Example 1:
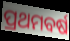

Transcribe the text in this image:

ପ୍ରଥମବର୍ଷ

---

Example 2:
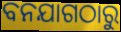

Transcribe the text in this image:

ବନଯାଗଠାରୁ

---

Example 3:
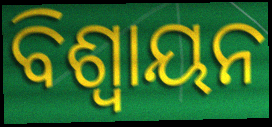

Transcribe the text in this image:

ବିଶ୍ଵାୟନ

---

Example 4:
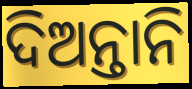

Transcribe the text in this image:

ଦିଅନ୍ତାନି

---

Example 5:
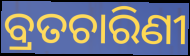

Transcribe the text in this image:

ବ୍ରତଚାରିଣୀ